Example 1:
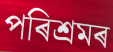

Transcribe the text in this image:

পৰিশ্ৰমৰ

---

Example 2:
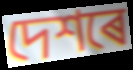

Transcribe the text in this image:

দেশৰে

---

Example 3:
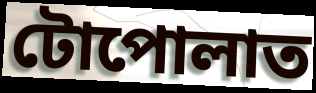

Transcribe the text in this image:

টোপোলাত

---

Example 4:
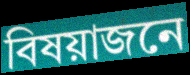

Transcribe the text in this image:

বিষয়াজনে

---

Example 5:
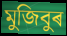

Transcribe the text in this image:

মুজিবুৰ